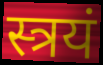
स्त्रयं